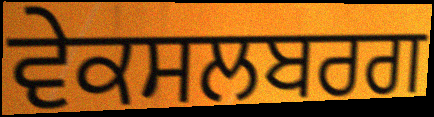
ਵੇਕਸਲਬਰਗ